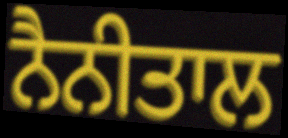
ਨੈਨੀਤਾਲ